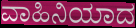
ವಾಹಿನಿಯಾದ